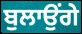
ਬੁਲਾਉਂਗੇ